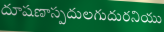
దూషణాస్పదులగుదురనియు